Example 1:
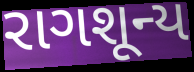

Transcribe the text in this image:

રાગશૂન્ય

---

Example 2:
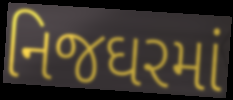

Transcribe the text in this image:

નિજઘરમાં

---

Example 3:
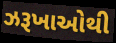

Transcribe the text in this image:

ઝરૂખાઓથી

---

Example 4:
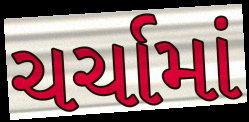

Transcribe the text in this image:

ચર્ચામાં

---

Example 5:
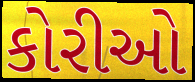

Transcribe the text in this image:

કોરીઓ